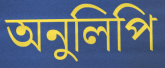
অনুলিপি